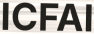
ICFAI